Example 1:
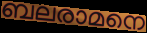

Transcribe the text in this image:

ബലരാമനെ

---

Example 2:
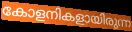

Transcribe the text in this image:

കോളനികളായിരുന്ന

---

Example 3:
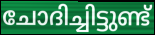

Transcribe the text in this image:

ചോദിച്ചിട്ടുണ്ട്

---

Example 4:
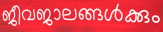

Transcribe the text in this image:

ജീവജാലങ്ങൾക്കും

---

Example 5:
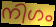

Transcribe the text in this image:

നിഗം